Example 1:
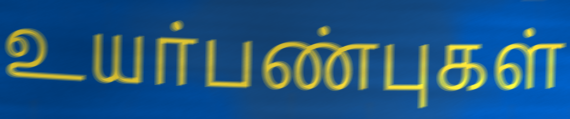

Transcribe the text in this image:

உயர்பண்புகள்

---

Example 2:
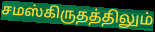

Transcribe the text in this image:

சமஸ்கிருதத்திலும்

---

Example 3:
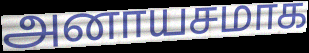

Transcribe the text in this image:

அனாயசமாக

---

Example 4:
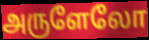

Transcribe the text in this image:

அருளேலோ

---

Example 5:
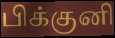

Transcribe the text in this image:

பிக்குனி